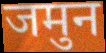
जमुन